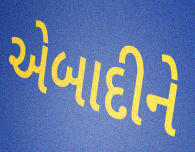
એબાદીને